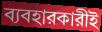
ব্যবহারকারীই